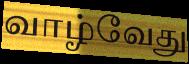
வாழ்வேது